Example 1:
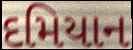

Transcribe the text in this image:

દમિયાન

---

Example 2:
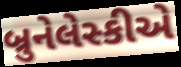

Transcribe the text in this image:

બ્રુનેલેસ્કીએ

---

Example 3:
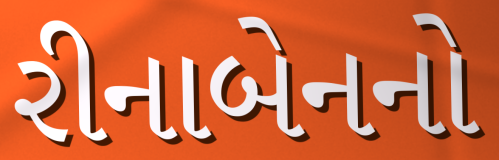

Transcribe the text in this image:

રીનાબેનનો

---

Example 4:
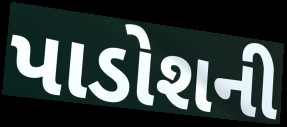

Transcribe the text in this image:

પાડોશની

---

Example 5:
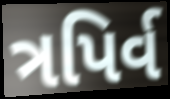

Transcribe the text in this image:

ત્રપિર્વ